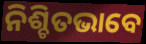
ନିଶ୍ଚିତଭାବେ